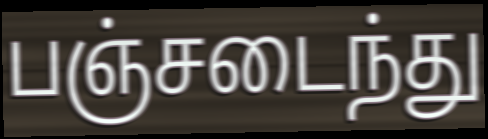
பஞ்சடைந்து